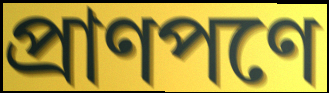
প্রাণপণে